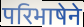
परिभाषेने